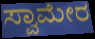
ಸ್ವಾಮೇರ